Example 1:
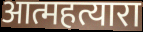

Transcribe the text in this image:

आत्महत्यारा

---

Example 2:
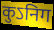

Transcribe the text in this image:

कुऽनिग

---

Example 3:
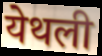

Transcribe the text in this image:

येथली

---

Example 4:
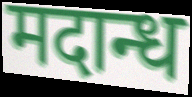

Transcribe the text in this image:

मदान्ध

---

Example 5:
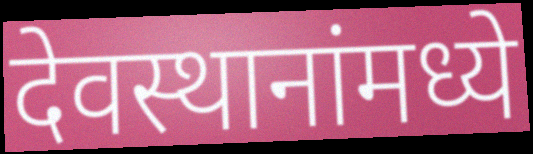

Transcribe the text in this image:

देवस्थानांमध्ये